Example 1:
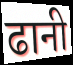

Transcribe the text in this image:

ढानी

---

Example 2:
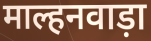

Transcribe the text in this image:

माल्हनवाड़ा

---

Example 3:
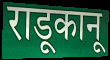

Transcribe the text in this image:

राडूकानू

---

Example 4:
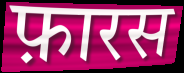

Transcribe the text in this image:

फ़ारस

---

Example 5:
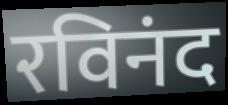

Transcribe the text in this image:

रविनंद